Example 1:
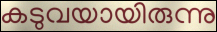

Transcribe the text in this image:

കടുവയായിരുന്നു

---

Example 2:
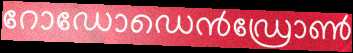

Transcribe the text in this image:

റോഡോഡെൻഡ്രോൺ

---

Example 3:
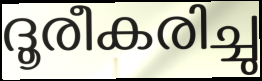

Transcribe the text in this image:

ദൂരീകരിച്ചു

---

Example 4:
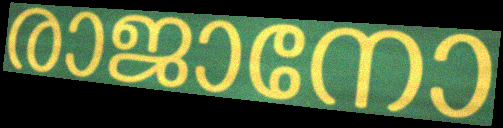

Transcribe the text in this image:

രാജാനോ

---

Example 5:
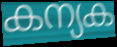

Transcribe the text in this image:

കന്യക